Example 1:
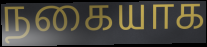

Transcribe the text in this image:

நகையாக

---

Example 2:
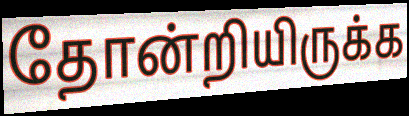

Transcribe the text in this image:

தோன்றியிருக்க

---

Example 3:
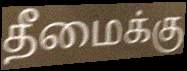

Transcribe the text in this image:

தீமைக்கு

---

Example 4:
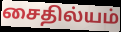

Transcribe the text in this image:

சைதில்யம்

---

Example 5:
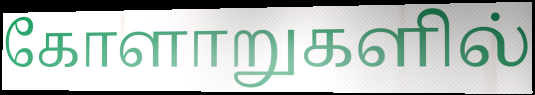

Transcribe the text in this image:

கோளாறுகளில்